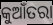
କୁଆଁତରା